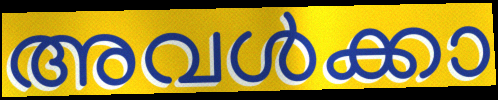
അവൾക്കാ